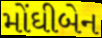
મોંઘીબેન